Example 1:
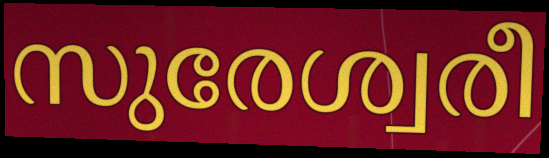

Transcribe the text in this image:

സുരേശ്വരീ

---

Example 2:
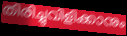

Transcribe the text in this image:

തിരിച്ചുവിളിക്കാനും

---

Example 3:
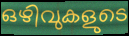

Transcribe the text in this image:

ഒഴിവുകളുടെ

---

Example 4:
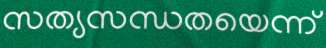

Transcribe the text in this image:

സത്യസന്ധതയെന്ന്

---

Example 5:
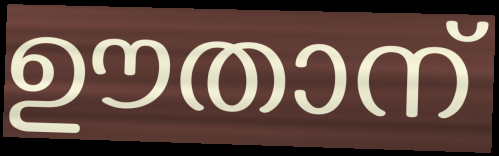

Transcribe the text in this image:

ഊതാന്